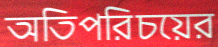
অতিপরিচয়ের